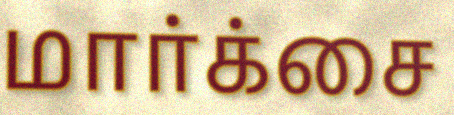
மார்க்சை